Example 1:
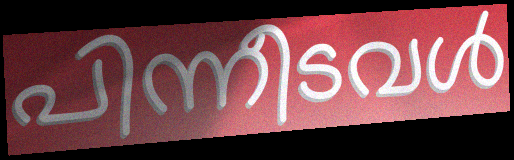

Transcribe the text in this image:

പിന്നീടവൾ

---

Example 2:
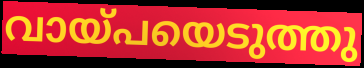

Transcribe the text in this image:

വായ്പയെടുത്തു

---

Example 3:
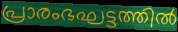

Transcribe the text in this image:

പ്രാരംഭഘട്ടത്തിൽ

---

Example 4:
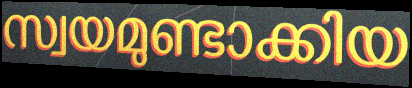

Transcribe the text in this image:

സ്വയമുണ്ടാക്കിയ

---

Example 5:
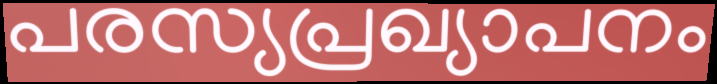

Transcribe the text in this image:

പരസ്യപ്രഖ്യാപനം